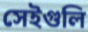
সেইগুলি